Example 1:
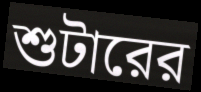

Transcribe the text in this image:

শুটারের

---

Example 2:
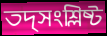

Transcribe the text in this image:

তদ্‌সংশ্লিষ্ট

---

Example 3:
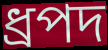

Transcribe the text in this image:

ধ্রপদ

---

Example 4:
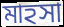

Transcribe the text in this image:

মাহসা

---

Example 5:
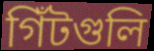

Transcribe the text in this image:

গিঁটগুলি